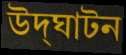
উদ্‌ঘাটন